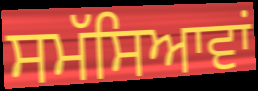
ਸਮੱਸਿਆਵਾਂ